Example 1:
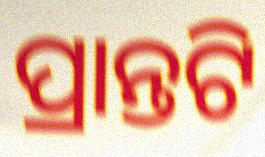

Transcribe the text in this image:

ପ୍ରାନ୍ତଟି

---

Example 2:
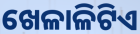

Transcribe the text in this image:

ଖେଳାଳିଟିଏ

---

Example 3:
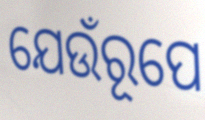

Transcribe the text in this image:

ଯେଉଁରୂପେ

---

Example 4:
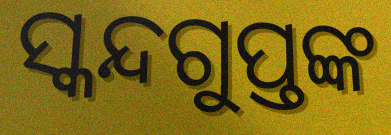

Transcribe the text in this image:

ସ୍କନ୍ଦଗୁପ୍ତଙ୍କ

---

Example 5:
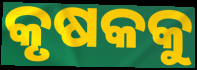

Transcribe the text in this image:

କୃଷକକୁ